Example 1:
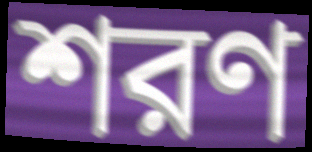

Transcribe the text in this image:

শরণ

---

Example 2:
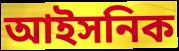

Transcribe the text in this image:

আইসনিক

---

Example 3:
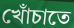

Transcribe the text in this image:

খোঁচাতে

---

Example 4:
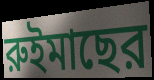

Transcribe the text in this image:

রুইমাছের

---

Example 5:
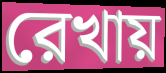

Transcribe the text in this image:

রেখায়